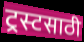
ट्रस्टसाठी